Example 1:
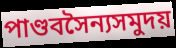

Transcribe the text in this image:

পাণ্ডবসৈন্যসমুদয়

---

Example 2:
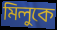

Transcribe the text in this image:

মিলুকে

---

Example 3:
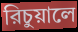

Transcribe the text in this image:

রিচুয়ালে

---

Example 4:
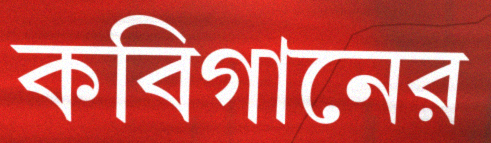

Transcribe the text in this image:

কবিগানের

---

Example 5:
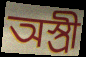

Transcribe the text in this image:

অস্ত্রী